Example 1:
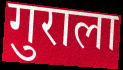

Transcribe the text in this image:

गुराला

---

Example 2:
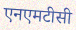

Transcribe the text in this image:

एनएमटीसी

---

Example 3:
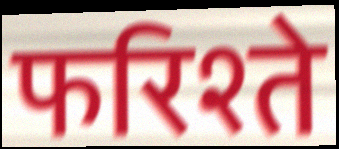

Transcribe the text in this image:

फरिश्ते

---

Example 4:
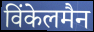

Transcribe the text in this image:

विंकेलमैन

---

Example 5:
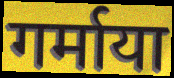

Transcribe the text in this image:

गर्माया